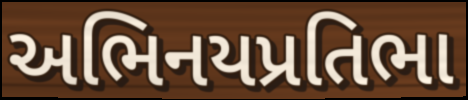
અભિનયપ્રતિભા